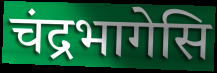
चंद्रभागेसि